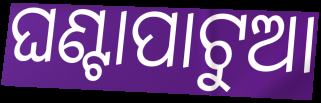
ଘଣ୍ଟାପାଟୁଆ